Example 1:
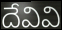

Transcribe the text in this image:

దేవివి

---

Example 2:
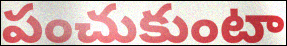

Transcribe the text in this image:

పంచుకుంటా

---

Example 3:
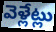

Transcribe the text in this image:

వెళ్లేట్లు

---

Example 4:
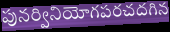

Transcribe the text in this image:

పునర్వినియోగపరచదగిన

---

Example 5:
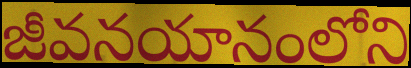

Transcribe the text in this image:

జీవనయానంలోని